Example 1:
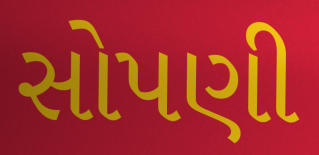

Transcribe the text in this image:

સોપણી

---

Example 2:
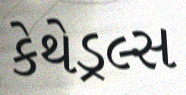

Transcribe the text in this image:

કેથેડ્રલ્સ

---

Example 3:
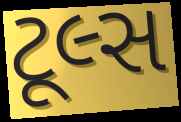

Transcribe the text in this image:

ટૂલ્સ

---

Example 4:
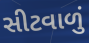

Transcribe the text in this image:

સીટવાળું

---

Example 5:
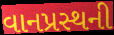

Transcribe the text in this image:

વાનપ્રસ્થની